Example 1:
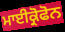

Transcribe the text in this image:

ਮਾਈਕ੍ਰੋਫੋਨ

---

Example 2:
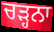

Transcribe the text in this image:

ਚੜ੍ਹਨਾ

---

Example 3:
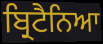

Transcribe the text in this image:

ਬ੍ਰਿਟੈਨਿਆ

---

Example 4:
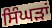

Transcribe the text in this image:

ਸਿੰਘੜਾਂ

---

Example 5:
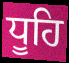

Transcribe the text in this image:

ਧੂਹਿ